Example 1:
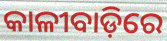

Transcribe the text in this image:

କାଳୀବାଡ଼ିରେ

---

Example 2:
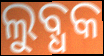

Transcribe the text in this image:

ଲୁବ୍ଧକ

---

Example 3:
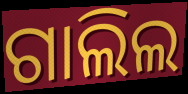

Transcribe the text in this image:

ଗାଲିଲ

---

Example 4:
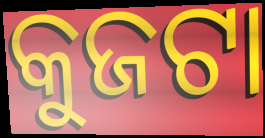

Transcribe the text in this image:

କୁଜଟା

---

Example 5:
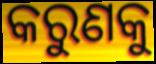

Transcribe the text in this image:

କରୁଣକୁ